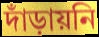
দাঁড়ায়নি